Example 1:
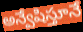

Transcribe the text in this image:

అన్వేషిస్తూనే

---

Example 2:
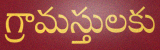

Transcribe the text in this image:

గ్రామస్తులకు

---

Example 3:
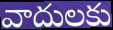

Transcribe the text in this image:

వాదులకు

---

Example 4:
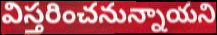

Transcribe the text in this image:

విస్తరించనున్నాయని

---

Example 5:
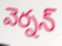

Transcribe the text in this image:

వెర్నన్